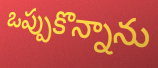
ఒప్పుకొన్నాను